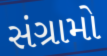
સંગ્રામો